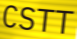
CSTT